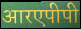
आरएपीपी